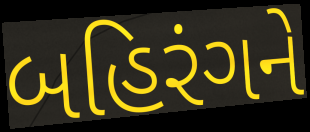
બહિરંગને